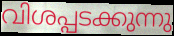
വിശപ്പടക്കുന്നു